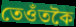
তেওঁতকৈ